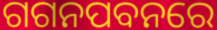
ଗଗନପବନରେ